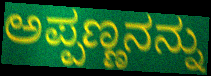
ಅಪ್ಪಣ್ಣನನ್ನು